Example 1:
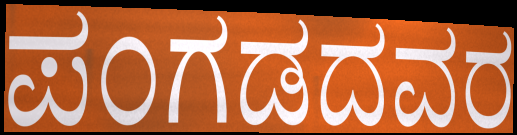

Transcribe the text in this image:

ಪಂಗಡದವರ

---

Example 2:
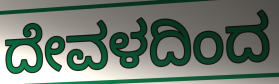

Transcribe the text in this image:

ದೇವಳದಿಂದ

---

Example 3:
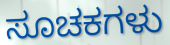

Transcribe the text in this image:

ಸೂಚಕಗಳು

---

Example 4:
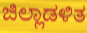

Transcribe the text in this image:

ಜಿಲ್ಲಾಡಳಿತ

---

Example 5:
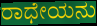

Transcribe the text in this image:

ರಾಧೇಯನು